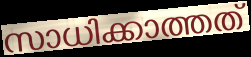
സാധിക്കാത്തത്